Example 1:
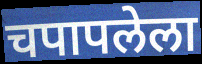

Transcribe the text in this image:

चपापलेला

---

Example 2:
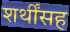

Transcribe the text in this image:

शर्थींसह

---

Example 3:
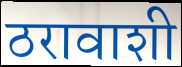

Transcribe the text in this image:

ठरावाशी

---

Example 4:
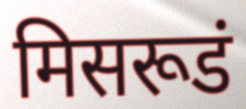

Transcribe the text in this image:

मिसरूडं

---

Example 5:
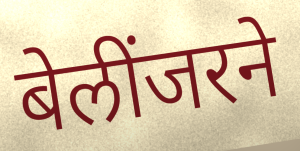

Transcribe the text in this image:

बेलींजरने